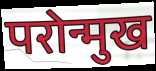
परोन्मुख